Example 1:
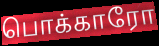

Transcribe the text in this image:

பொக்காரோ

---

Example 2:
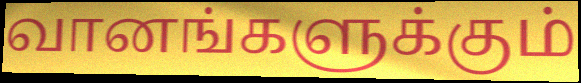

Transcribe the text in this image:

வானங்களுக்கும்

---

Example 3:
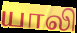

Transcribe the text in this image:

யாலி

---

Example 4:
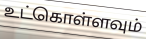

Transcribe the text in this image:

உட்கொள்ளவும்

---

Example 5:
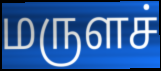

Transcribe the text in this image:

மருளச்